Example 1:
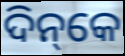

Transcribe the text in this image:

ଦିନ୍‌କେ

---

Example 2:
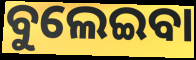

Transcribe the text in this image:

ବୁଲେଇବା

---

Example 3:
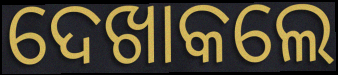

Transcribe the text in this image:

ଦେଖାକଲେ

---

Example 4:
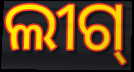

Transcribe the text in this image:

ଲୀଗ୍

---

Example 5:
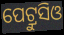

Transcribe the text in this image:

ପେଟ୍ରୁସିଓ